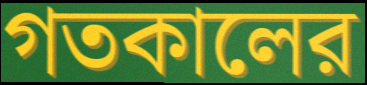
গতকালের